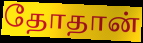
தோதான்